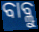
ବାବ୍ଲୁ